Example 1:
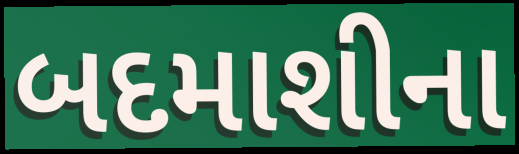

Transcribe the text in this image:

બદમાશીના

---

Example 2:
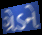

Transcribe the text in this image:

ગ્રેડને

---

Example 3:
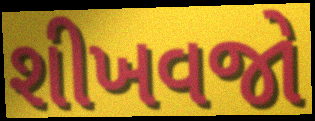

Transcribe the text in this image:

શીખવજો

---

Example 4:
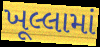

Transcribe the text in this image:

ખૂલ્લામાં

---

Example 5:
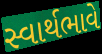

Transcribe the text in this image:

સ્વાર્થભાવે